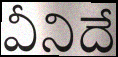
వీనిదే